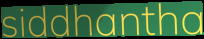
siddhantha